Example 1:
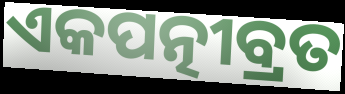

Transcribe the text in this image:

ଏକପତ୍ନୀବ୍ରତ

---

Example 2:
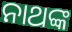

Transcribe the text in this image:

ନାଥଙ୍କ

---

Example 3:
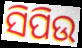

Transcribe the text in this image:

ସିପିଉ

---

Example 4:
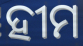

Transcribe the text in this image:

ହୀମ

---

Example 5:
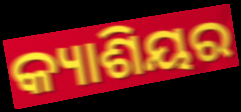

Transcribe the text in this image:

କ୍ୟାଶିୟର